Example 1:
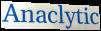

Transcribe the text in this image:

Anaclytic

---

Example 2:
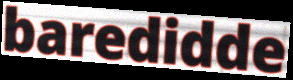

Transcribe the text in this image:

baredidde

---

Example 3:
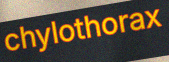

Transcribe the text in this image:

chylothorax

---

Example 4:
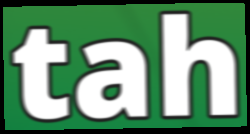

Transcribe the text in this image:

tah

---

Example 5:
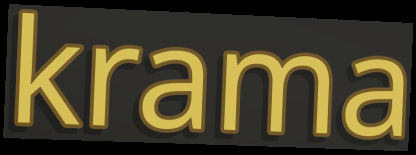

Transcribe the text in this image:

krama